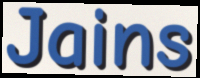
Jains